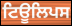
ਟਿਊਲਿਪਸ